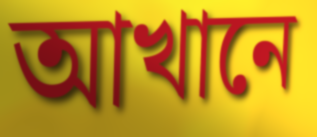
আখানে